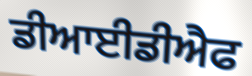
ਡੀਆਈਡੀਐਫ